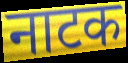
नाटक